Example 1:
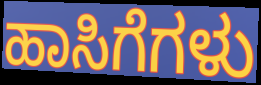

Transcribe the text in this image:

ಹಾಸಿಗೆಗಳು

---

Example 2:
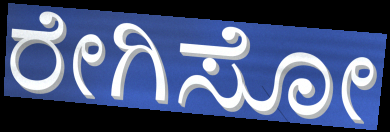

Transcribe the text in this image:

ರೇಗಿಸೋ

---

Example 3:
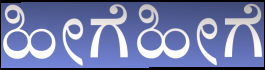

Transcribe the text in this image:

ಹೀಗೆಹೀಗೆ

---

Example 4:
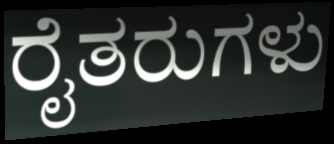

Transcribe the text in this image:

ರೈತರುಗಳು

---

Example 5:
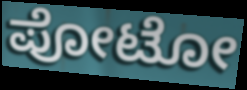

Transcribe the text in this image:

ಪೋಟೋ